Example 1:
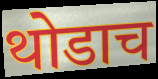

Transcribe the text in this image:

थोडाच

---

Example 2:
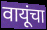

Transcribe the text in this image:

वायूंचा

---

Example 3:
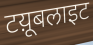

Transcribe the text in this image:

टय़ूबलाइट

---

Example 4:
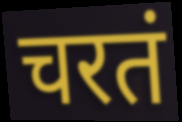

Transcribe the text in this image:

चरतं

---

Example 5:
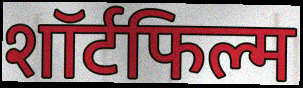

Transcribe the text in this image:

शॉर्टफिल्म